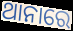
ଥାନାରେ